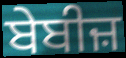
ਬੇਬੀਜ਼